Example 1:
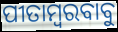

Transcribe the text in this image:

ପୀତାମ୍ବରବାବୁ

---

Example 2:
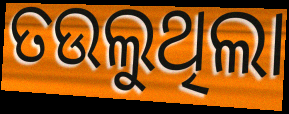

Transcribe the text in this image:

ତଉଲୁଥିଲା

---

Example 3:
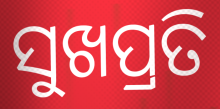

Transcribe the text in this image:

ସୁଖପ୍ରତି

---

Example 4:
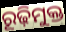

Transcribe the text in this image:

ରୂଢ଼ିମୁକ୍ତ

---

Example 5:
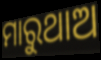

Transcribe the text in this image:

ମାରୁଥାଅ